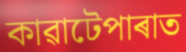
কাৱাটেপাৰাত